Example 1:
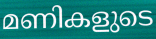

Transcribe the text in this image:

മണികളുടെ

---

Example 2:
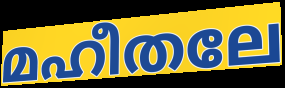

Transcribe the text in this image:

മഹീതലേ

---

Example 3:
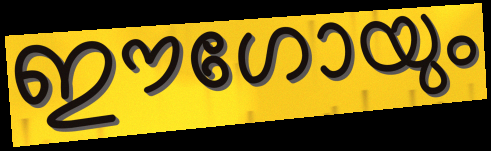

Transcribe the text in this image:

ഈഗോയും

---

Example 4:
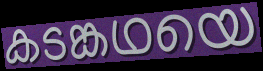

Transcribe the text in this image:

കടങ്കഥയെ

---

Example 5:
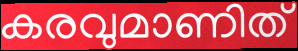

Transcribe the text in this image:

കരവുമാണിത്